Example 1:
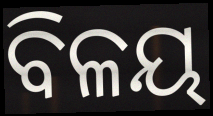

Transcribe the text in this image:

ବିଳୟ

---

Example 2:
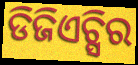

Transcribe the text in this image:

ଡିଜିଏଚ୍ସିର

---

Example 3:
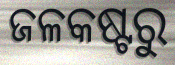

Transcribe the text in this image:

ଜଳକଷ୍ଟରୁ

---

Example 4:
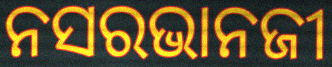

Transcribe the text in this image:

ନସରଭାନଜୀ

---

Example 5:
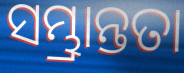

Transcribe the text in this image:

ସମ୍ଭ୍ରାନ୍ତତା